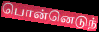
பொன்னெடுந்